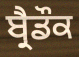
ਬ੍ਰੈਡੌਕ